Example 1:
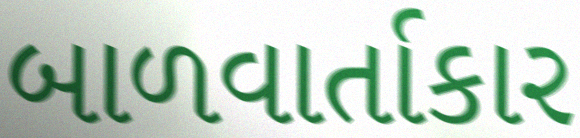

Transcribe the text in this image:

બાળવાર્તાકાર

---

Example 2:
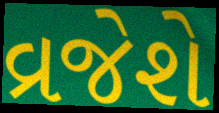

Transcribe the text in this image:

વ્રજેશે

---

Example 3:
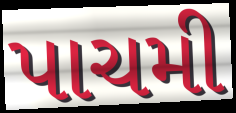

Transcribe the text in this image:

પાચમી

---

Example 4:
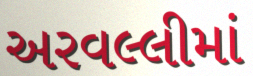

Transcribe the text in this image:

અરવલ્લીમાં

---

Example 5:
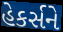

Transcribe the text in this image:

હેકર્સને